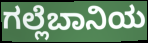
ಗಲ್ಲೆಬಾನಿಯ